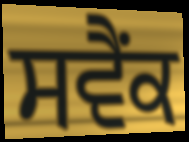
ਸਵੈਂਕ